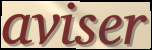
aviser